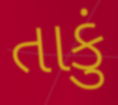
તાકું